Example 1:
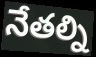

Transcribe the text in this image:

నేతల్ని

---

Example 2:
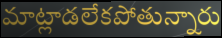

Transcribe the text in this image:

మాట్లాడలేకపోతున్నారు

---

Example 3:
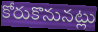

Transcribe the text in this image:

కోరుకొనునట్లు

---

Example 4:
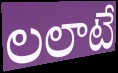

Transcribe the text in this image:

లలాటే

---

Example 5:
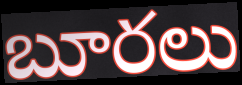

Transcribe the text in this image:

బూరలు